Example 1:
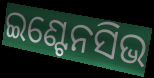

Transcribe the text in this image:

ଇଣ୍ଟେନସିଭ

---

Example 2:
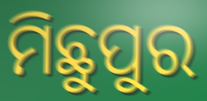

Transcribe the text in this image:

ମିଛୁପୁର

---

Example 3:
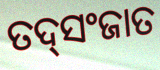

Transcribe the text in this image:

ତଦ୍‌ସଂଜାତ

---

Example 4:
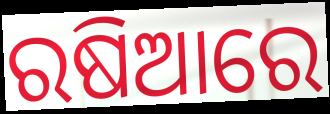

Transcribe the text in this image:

ରଷିଆରେ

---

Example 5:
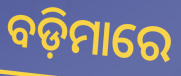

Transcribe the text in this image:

ବଡ଼ିମାରେ